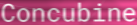
Concubine